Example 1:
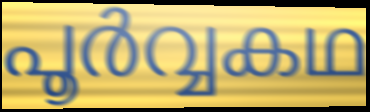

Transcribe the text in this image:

പൂർവ്വകഥ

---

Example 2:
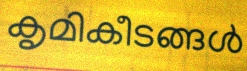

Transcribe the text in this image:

കൃമികീടങ്ങൾ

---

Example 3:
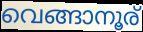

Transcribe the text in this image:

വെങ്ങാനൂര്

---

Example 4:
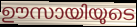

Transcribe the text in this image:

ഊസായിയുടെ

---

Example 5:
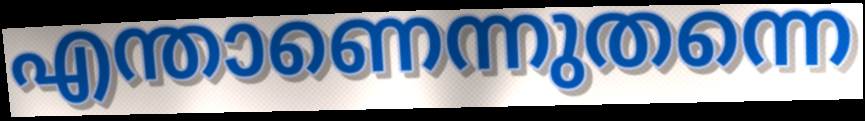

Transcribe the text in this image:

എന്താണെന്നുതന്നെ